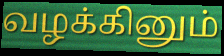
வழக்கினும்